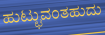
ಹುಟ್ಟುವಂತಹುದು